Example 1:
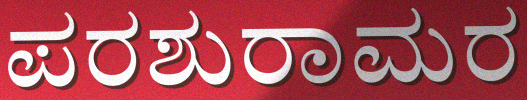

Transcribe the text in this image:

ಪರಶುರಾಮರ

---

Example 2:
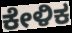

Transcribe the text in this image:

ಕೇಳಿಕ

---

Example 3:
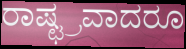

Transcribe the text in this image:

ರಾಷ್ಟ್ರವಾದರೂ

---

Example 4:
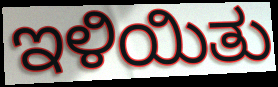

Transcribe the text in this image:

ಇಳಿಯಿತು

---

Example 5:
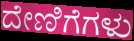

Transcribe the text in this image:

ದೇಣಿಗೆಗಳು